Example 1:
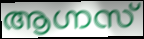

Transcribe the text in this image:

ആഗ്നസ്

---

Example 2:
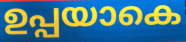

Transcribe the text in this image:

ഉപ്പയാകെ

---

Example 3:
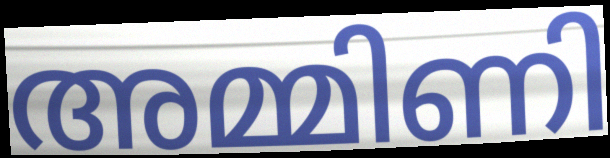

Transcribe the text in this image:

അമ്മിണി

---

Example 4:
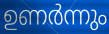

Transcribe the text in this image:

ഉണർന്നും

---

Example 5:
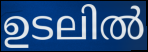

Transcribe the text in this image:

ഉടലിൽ